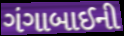
ગંગાબાઈની